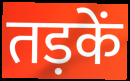
तड़कें